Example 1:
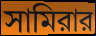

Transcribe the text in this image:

সামিরার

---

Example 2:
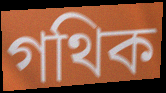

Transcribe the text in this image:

গথিক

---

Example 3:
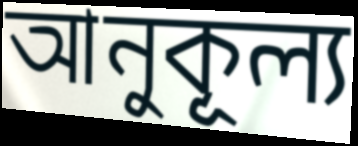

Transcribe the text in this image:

আনুকূল্য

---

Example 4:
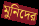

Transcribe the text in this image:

মুনিদের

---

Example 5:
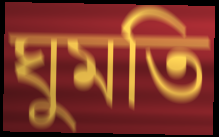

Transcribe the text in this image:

ঘুমতি